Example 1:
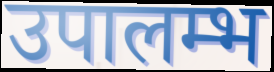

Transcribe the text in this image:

उपालम्भ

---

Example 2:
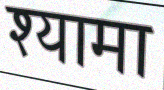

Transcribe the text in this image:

श्यामा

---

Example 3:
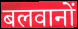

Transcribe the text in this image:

बलवानों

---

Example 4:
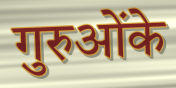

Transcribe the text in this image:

गुरुओंके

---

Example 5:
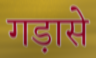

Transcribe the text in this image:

गड़ासे